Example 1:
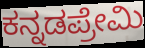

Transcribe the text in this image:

ಕನ್ನಡಪ್ರೇಮಿ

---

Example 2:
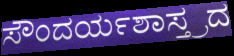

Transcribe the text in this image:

ಸೌಂದರ್ಯಶಾಸ್ತ್ರದ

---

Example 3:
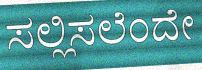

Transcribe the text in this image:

ಸಲ್ಲಿಸಲೆಂದೇ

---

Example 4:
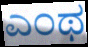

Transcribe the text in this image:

ಎಂಥ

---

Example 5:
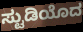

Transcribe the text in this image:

ಸ್ಟುಡಿಯೊದ